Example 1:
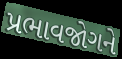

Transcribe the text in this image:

પ્રભાવજોગને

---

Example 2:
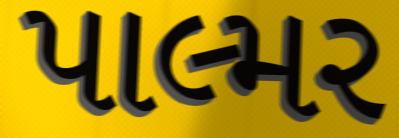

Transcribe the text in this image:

પાલ્મર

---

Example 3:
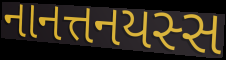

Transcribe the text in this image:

નાનત્તનયસ્સ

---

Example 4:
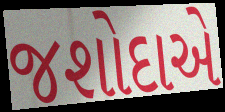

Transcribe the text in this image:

જશોદાએ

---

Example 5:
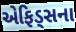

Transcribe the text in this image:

એફિડ્સના